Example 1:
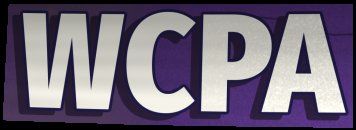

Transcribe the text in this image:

WCPA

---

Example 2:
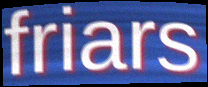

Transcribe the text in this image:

friars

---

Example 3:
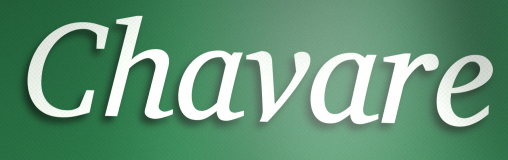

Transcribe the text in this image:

Chavare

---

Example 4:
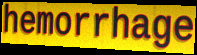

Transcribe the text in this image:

hemorrhage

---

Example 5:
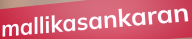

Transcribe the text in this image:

mallikasankaran